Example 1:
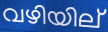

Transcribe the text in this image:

വഴിയില്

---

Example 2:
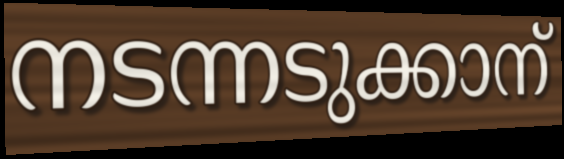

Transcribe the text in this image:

നടന്നടുക്കാന്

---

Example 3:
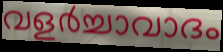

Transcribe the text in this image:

വളർച്ചാവാദം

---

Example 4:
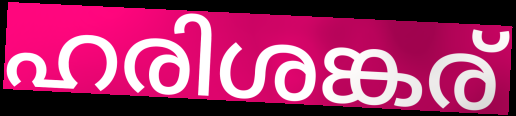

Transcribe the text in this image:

ഹരിശങ്കര്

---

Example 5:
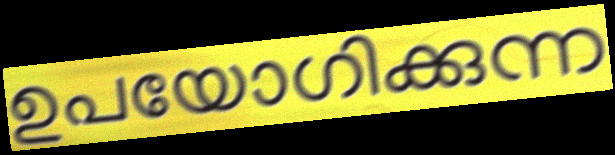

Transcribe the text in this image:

ഉപയോഗിക്കുന്ന